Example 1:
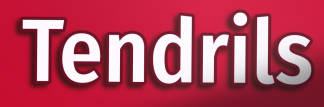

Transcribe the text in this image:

Tendrils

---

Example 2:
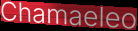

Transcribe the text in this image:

Chamaeleo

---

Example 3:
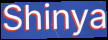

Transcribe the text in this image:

Shinya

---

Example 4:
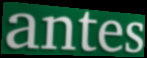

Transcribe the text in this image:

antes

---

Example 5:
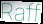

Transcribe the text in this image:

Raff